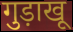
गुड़ाखू